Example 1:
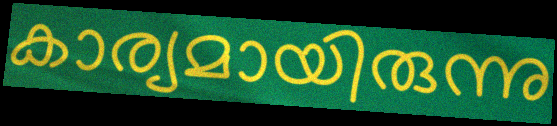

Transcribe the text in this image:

കാര്യമായിരുന്നു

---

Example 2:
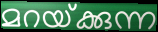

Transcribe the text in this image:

മറയ്‌ക്കുന്ന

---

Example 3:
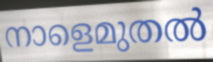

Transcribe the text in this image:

നാളെമുതൽ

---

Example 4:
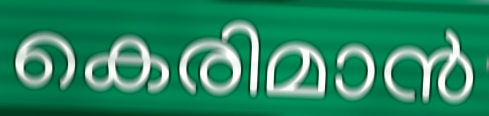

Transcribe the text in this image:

കെരിമാൻ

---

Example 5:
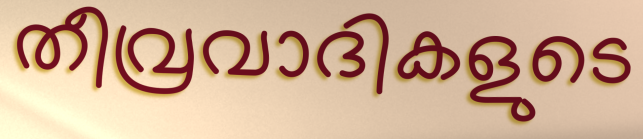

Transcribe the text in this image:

തീവ്രവാദികളുടെ